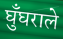
घुँघराले